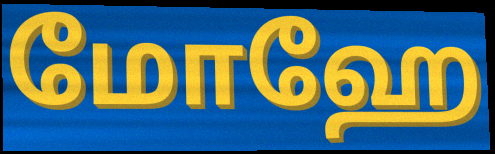
மோஹே